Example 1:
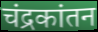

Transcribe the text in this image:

चंद्रकांतन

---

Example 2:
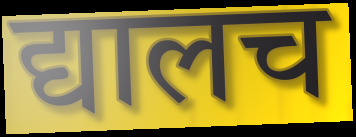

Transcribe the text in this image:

द्यालच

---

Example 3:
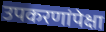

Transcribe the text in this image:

उपकरणांपेक्षा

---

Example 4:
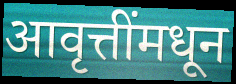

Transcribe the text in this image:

आवृत्तींमधून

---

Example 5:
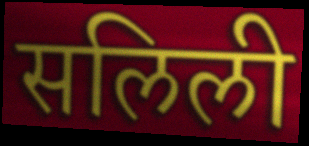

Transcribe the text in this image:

सलिली